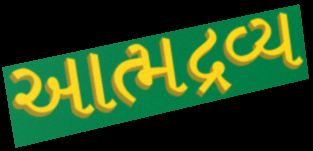
આત્મદ્રવ્ય